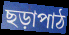
ছড়াপাঠ